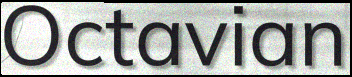
Octavian